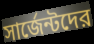
সার্জেন্টদের